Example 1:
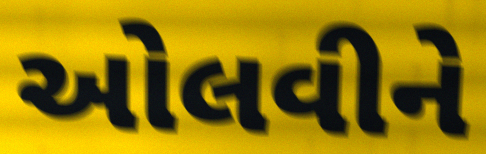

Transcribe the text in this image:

ઓલવીને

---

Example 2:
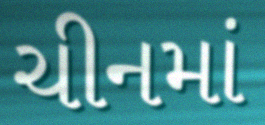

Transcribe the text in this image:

ચીનમાં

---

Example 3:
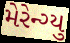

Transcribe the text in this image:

મેરેન્ગ્યુ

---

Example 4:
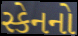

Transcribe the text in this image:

સ્કેનનો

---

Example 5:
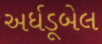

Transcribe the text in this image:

અર્ધડૂબેલ